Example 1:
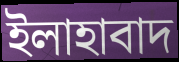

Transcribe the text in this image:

ইলাহাবাদ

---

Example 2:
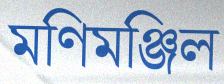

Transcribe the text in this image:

মণিমঞ্জিল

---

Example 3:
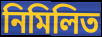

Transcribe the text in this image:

নিমিলিত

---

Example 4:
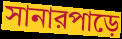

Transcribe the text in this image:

সানারপাড়ে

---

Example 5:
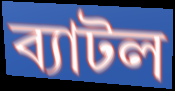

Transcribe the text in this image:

ব্যাটল